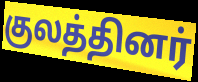
குலத்தினர்